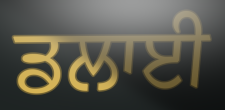
ਡਲਾਈ